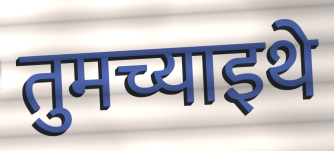
तुमच्याइथे